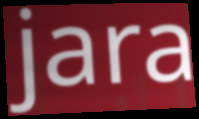
jara